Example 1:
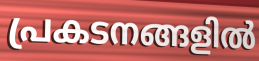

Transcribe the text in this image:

പ്രകടനങ്ങളിൽ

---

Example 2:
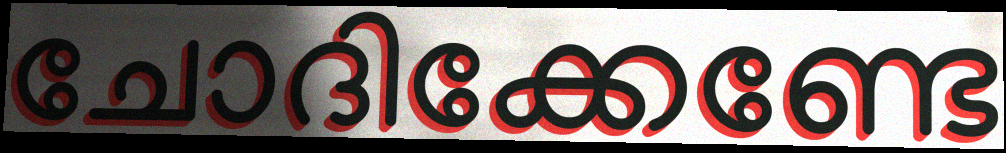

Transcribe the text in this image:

ചോദിക്കേണ്ടേ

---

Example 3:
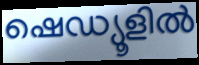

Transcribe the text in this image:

ഷെഡ്യൂളിൽ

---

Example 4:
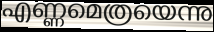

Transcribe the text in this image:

എണ്ണമെത്രയെന്നു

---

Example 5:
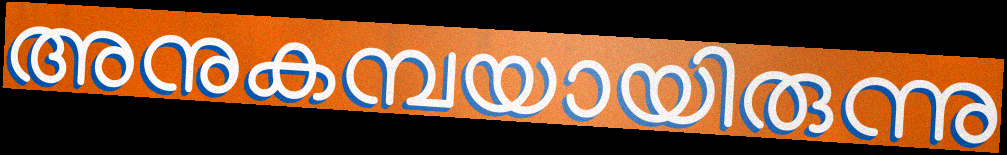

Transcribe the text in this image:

അനുകമ്പയായിരുന്നു